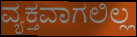
ವ್ಯಕ್ತವಾಗಲಿಲ್ಲ